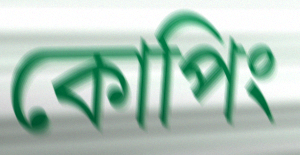
কোপিং